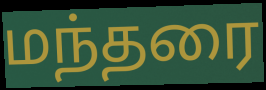
மந்தரை